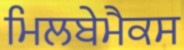
ਮਿਲਬੇਮੈਕਸ